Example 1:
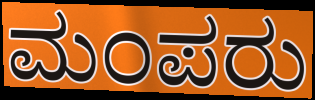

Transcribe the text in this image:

ಮಂಪರು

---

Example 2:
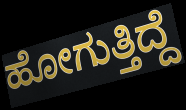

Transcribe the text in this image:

ಹೋಗುತ್ತಿದ್ದೆ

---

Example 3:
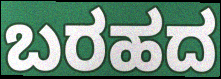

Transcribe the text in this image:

ಬರಹದ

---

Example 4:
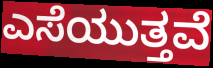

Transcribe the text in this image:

ಎಸೆಯುತ್ತವೆ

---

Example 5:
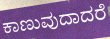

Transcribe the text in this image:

ಕಾಣುವುದಾದರೆ